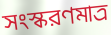
সংস্করণমাত্র